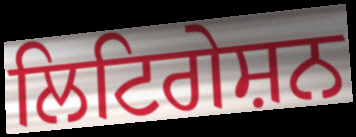
ਲਿਟਿਗੇਸ਼ਨ